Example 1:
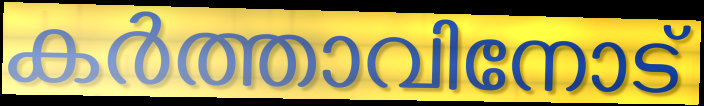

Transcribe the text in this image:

കർത്താവിനോട്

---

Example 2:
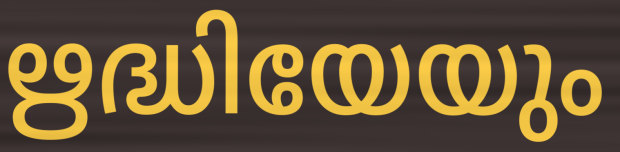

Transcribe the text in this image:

ഋദ്ധിയേയും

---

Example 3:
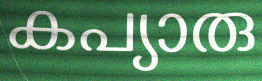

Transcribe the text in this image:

കപ്യാരു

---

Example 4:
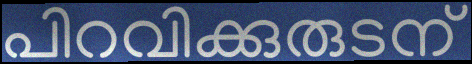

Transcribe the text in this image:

പിറവിക്കുരുടന്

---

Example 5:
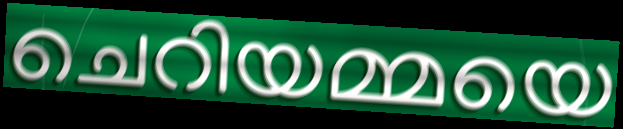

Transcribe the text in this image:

ചെറിയമ്മയെ